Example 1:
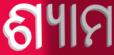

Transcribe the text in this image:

ଶ୍ୟାମ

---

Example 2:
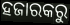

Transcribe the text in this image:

ହଜାରକରୁ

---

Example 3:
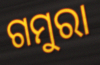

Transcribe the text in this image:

ଗମୁରା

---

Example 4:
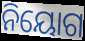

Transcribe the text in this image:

ନିୟୋଗ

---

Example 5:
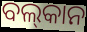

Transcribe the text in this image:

ବଲ୍‌କାନ